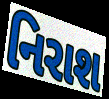
નિરાશ